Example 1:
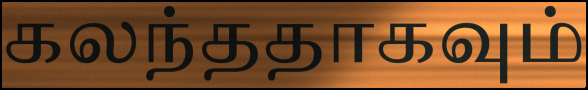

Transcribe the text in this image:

கலந்ததாகவும்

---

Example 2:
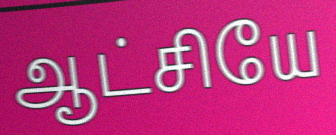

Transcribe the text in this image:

ஆட்சியே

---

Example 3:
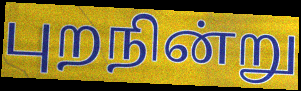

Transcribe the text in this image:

புறநின்று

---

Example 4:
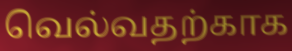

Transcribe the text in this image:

வெல்வதற்காக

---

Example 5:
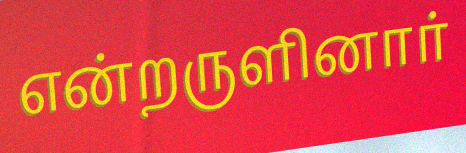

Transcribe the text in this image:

என்றருளினார்